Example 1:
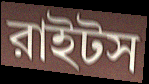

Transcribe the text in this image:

রাইটস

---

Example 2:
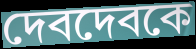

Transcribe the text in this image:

দেবদেবকে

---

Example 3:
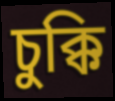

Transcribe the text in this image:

চুক্কি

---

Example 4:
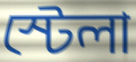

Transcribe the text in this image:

স্টেলা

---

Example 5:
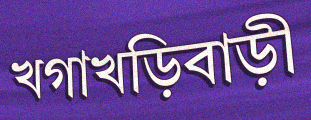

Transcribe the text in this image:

খগাখড়িবাড়ী